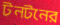
টনটনের